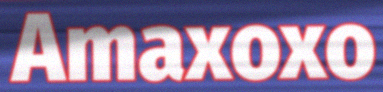
Amaxoxo